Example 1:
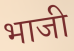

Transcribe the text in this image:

भाजी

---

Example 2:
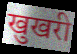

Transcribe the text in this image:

खुखरी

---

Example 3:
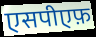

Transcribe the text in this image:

एसपीएफ़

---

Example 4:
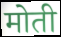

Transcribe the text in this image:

मोती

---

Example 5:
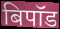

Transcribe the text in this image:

बिपॉड